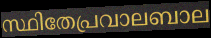
സ്ഥിതേപ്രവാലബാല